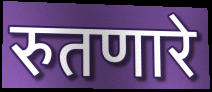
रुतणारे